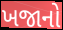
ખજાનો